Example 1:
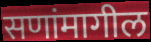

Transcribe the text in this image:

सणांमागील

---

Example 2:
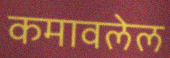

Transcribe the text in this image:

कमावलेल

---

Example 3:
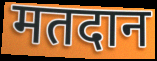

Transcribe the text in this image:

मतदान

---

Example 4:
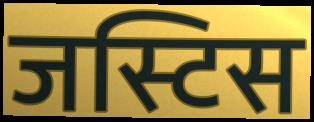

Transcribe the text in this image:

जस्टिस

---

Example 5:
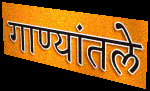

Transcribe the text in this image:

गाण्यांतले